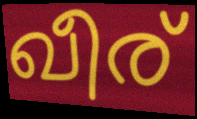
ഖീര്